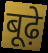
बूढ़े